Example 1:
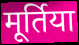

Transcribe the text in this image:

मूर्तिया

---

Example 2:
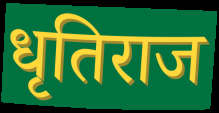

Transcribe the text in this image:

धृतिराज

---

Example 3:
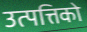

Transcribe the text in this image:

उत्पत्तिको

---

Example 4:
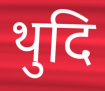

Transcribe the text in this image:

थुदि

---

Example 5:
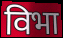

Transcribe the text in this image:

विभा